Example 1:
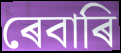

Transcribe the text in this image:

ৰেবাৰি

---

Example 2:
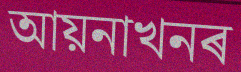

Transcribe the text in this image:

আয়নাখনৰ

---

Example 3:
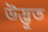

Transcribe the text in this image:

উদ্ভূত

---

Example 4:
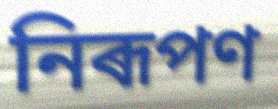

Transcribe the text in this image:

নিৰূপণ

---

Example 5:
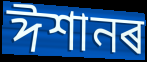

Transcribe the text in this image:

ঈশানৰ